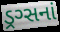
ડ્રગ્સનાં